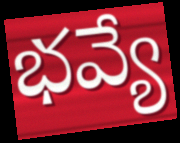
భవ్యే